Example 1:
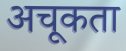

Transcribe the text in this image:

अचूकता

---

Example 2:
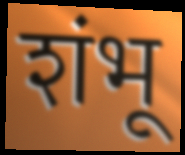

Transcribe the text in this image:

शंभू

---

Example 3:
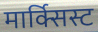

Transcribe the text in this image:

मार्क्सिस्ट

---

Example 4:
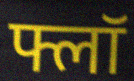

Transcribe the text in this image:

फ्लॉ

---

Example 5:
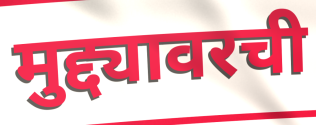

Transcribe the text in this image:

मुद्द्यावरची